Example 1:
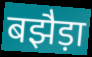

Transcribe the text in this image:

बझैड़ा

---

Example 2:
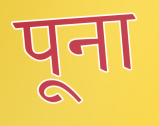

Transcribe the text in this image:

पूना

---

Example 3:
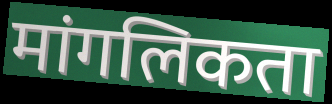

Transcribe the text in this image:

मांगलिकता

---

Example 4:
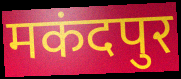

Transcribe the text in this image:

मकंदपुर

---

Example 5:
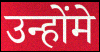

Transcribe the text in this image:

उन्होंमे